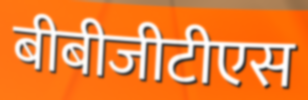
बीबीजीटीएस